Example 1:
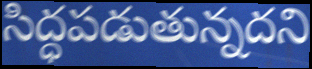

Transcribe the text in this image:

సిద్ధపడుతున్నదని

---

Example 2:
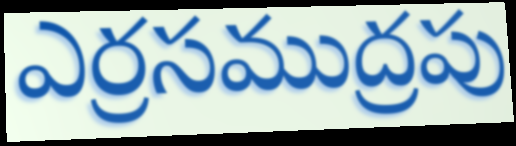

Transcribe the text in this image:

ఎర్రసముద్రపు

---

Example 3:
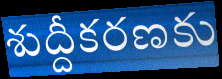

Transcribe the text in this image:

శుద్దీకరణకు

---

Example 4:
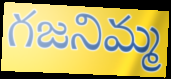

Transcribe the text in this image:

గజనిమ్మ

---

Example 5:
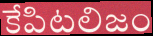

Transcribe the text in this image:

కేపిటలిజం